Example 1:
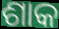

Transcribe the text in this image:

ଶାକ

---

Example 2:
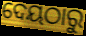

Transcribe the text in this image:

ଦେୟଠାରୁ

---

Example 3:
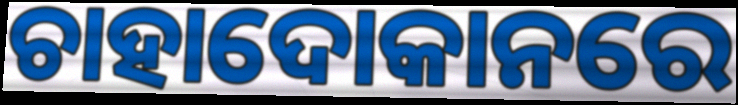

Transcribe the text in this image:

ଚାହାଦୋକାନରେ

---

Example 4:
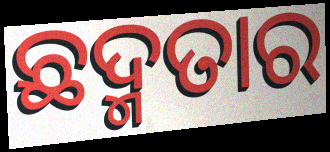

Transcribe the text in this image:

ଛଦ୍ମତାର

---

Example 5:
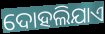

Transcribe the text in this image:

ଦୋହଲିଯାଏ